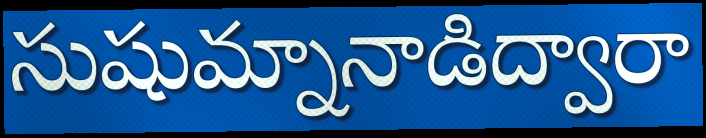
సుషుమ్నానాడిద్వారా